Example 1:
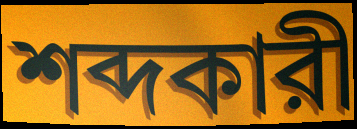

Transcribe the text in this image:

শব্দকারী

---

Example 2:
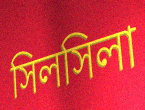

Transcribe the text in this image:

সিলসিলা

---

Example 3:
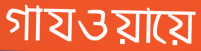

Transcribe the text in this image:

গাযওয়ায়ে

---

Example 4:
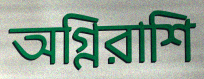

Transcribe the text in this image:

অগ্নিরাশি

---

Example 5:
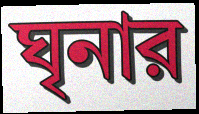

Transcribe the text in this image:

ঘৃনার